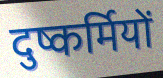
दुष्कर्मियों